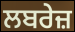
ਲਬਰੇਜ਼